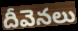
దీవెనలు